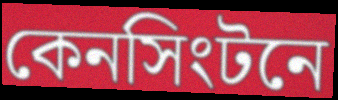
কেনসিংটনে